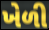
ખેળી